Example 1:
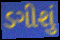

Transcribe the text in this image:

ડગીશું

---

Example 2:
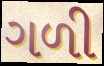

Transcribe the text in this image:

ગળી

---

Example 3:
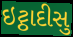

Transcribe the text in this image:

ઇટ્ઠાદીસુ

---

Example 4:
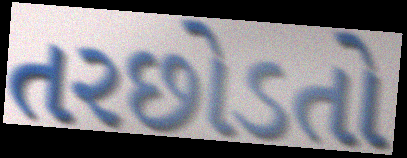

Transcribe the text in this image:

તરછોડતો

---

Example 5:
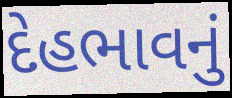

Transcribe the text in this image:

દેહભાવનું